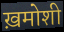
ख़मोशी